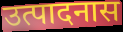
उत्पादनास